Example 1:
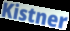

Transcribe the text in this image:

Kistner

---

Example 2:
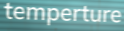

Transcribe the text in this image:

temperture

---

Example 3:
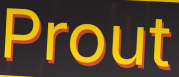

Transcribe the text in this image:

Prout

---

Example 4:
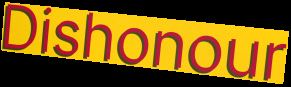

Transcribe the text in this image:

Dishonour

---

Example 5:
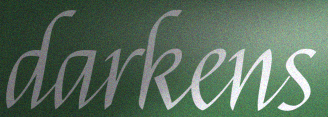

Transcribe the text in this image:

darkens